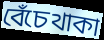
বেঁচেথাকা